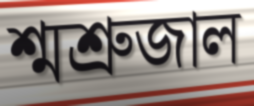
শ্মশ্রুজাল